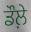
ਡੌਲ਼ੇ